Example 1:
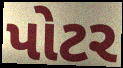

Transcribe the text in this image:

પોટર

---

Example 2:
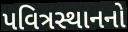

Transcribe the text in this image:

પવિત્રસ્થાનનો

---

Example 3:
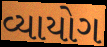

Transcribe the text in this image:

વ્યાયોગ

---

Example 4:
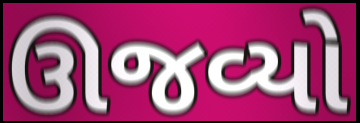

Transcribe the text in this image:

ઊજવ્યો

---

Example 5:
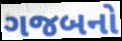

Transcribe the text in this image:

ગજબનો